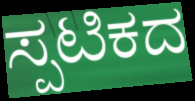
ಸ್ಪಟಿಕದ